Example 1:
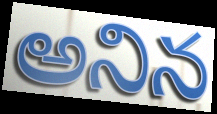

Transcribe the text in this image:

అనిన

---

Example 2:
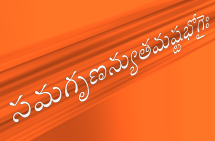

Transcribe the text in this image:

సమగృణన్యుతమష్టభోగైః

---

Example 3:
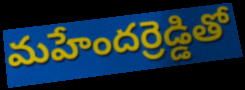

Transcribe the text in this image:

మహేందర్రెడ్డితో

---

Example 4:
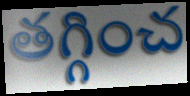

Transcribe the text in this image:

తగ్గించ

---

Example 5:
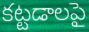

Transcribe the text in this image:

కట్టడాలపై